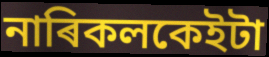
নাৰিকলকেইটা